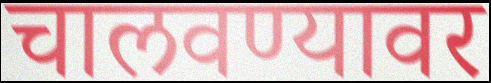
चालवण्यावर